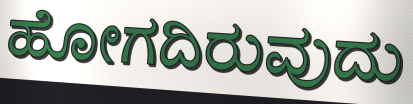
ಹೋಗದಿರುವುದು